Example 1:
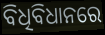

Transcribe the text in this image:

ବିଧିବିଧାନରେ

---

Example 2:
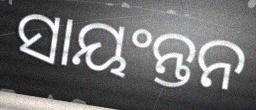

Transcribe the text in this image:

ସାୟଂନ୍ତନ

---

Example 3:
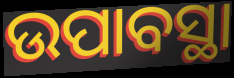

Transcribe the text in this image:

ଉପାବସ୍ଥା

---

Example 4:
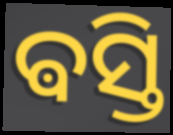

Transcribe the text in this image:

ଵସ୍ତି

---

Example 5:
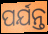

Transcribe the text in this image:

ପର୍ଯନ୍ତ